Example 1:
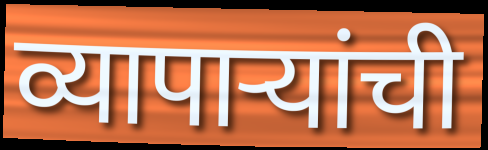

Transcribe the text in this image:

व्यापाऱ्यांची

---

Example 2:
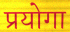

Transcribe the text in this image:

प्रयोगा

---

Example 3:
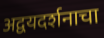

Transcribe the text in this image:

अद्वयदर्शनाचा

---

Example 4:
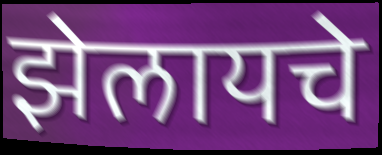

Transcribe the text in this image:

झेलायचे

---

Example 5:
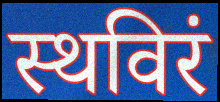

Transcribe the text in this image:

स्थविरं